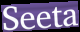
Seeta